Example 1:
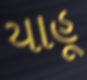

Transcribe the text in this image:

યાહૂ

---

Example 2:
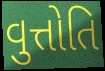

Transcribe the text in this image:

વુત્તોતિ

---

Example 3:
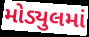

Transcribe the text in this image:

મોડ્યુલમાં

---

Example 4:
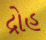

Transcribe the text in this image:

દ્રોહ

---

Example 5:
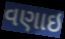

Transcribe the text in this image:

વણાઇ